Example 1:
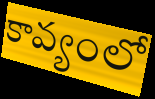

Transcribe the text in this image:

కావ్యంలో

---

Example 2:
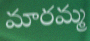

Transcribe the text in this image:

మారమ్మ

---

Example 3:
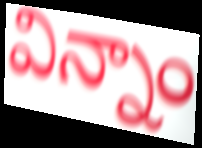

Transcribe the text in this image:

విన్నాం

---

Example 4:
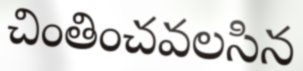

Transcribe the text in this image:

చింతించవలసిన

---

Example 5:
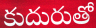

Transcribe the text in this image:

కుదురుతో